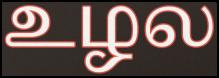
உழல